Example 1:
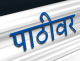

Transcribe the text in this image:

पाठीवर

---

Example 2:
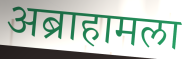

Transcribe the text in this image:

अब्राहामला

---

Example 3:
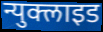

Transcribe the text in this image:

न्युक्लाइड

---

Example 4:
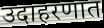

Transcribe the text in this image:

उदाहरणात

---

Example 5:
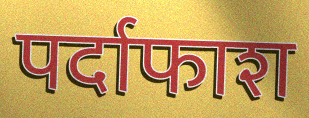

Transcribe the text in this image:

पर्दाफाश